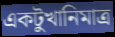
একটুখানিমাত্র